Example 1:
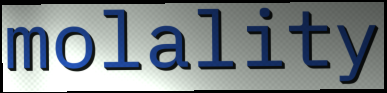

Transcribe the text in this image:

molality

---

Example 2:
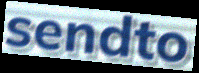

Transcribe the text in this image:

sendto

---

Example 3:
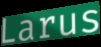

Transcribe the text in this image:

Larus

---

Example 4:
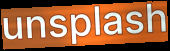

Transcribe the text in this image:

unsplash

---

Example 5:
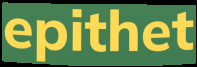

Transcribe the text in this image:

epithet